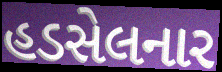
હડસેલનાર